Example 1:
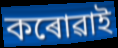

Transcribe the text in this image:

কৰোৱাই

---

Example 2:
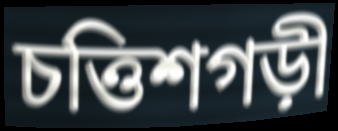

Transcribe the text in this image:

চত্তিশগড়ী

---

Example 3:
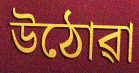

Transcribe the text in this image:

উঠোৱা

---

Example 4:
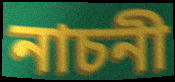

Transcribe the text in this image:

নাচনী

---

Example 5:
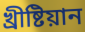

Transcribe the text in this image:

খ্ৰীষ্টিয়ান